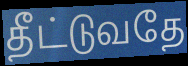
தீட்டுவதே